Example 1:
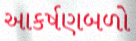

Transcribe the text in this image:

આકર્ષણબળો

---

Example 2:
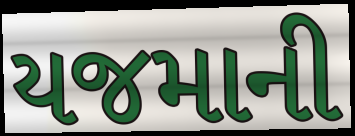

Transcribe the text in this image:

યજમાની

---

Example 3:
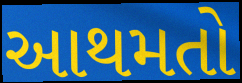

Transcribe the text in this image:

આથમતો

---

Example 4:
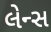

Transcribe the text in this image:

લેન્સ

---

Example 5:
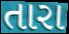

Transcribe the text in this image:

તારા